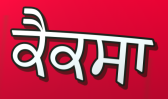
ਕੈਕਸਾ